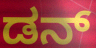
ಡನ್